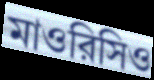
মাওরিসিও